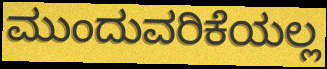
ಮುಂದುವರಿಕೆಯಲ್ಲ